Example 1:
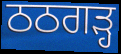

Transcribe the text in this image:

ਠਠਗੜ੍ਹ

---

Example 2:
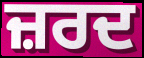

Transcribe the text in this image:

ਜ਼ਰਦ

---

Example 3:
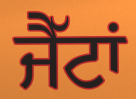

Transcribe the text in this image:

ਜੈੱਟਾਂ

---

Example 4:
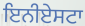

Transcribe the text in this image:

ਇਨੀਏਸਟਾ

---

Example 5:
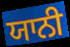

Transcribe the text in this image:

ਯਾਨੀ